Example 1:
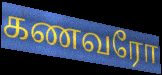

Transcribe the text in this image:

கணவரோ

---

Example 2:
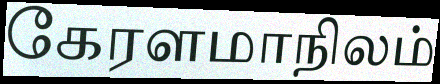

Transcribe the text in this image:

கேரளமாநிலம்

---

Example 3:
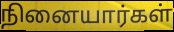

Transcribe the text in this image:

நினையார்கள்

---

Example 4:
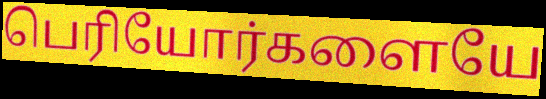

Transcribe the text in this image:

பெரியோர்களையே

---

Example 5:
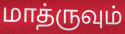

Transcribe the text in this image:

மாத்ருவும்